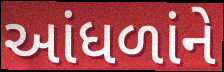
આંધળાંને